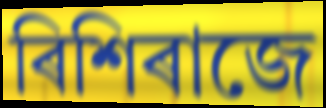
ৰিশিৰাজে